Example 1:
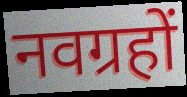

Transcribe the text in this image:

नवग्रहों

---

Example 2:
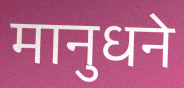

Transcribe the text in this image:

मानुधने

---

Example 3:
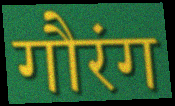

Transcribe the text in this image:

गौरंग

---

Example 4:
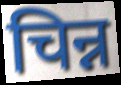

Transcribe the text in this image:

चिन्न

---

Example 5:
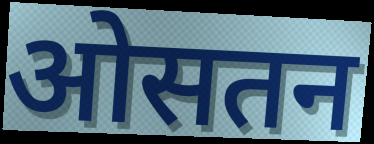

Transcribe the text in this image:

ओसतन